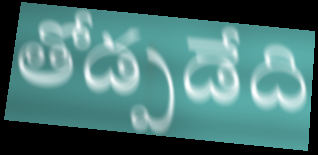
తోడ్పడేది